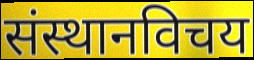
संस्थानविचय